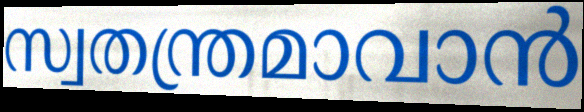
സ്വതന്ത്രമാവാൻ